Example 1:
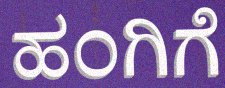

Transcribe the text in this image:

ಹಂಗಿಗೆ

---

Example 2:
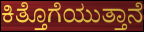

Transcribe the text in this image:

ಕಿತ್ತೊಗೆಯುತ್ತಾನೆ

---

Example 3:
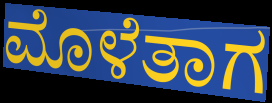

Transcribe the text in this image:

ಮೊಳೆತಾಗ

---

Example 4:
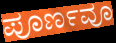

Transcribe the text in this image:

ಪೂರ್ಣವೂ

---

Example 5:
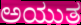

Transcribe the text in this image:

ಅಯುತ